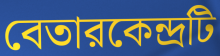
বেতারকেন্দ্রটি